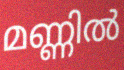
മണ്ണിൽ